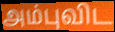
அம்புவிட